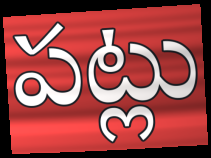
పట్లు